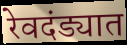
रेवदंड्यात